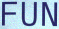
FUN